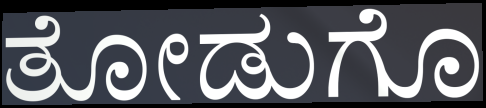
ತೋಡುಗೊ